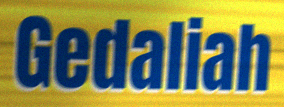
Gedaliah